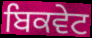
ਬਿਕਵੇਟ